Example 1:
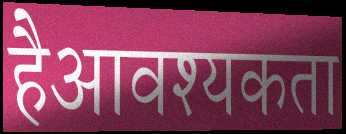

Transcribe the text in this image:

हैआवश्यकता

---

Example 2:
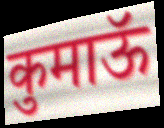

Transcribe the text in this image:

कुमाऊॅ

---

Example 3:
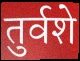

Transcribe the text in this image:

तुर्वशे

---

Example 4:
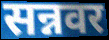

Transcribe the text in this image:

सन्नवर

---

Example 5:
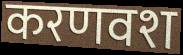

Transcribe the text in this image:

करणवश